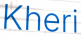
Kheri